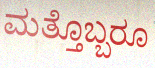
ಮತ್ತೊಬ್ಬರೂ